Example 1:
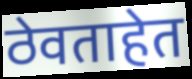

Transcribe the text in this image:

ठेवताहेत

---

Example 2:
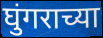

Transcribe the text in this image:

घुंगराच्या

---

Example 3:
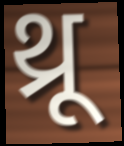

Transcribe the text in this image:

थ्रू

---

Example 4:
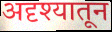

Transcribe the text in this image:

अदृश्यातून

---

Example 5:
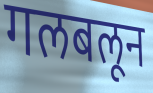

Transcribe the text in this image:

गलबलून